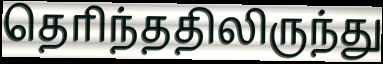
தெரிந்ததிலிருந்து